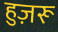
हुज़रू